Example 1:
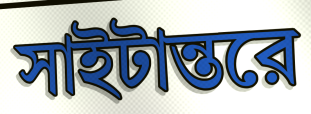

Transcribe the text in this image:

সাইটান্তরে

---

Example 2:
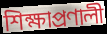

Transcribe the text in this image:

শিক্ষাপ্রণালী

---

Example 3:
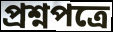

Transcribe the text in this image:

প্রশ্নপত্রে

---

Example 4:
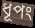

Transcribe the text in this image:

ধূপং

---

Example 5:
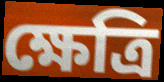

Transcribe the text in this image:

ক্ষেত্রি